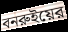
বনরুইয়ের